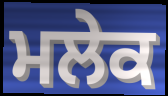
ਮਲੇਕ